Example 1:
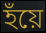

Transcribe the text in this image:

হঁয়ে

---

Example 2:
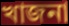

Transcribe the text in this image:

খাজনা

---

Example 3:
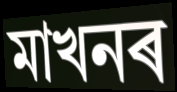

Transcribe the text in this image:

মাখনৰ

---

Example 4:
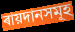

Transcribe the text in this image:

ৰায়দানসমূহ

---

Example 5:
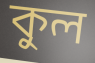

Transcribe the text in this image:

কুল